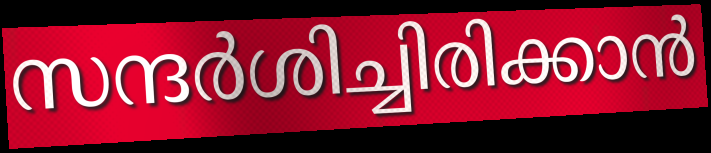
സന്ദർശിച്ചിരിക്കാൻ